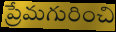
ప్రేమగురించి